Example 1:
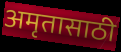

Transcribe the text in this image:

अमृतासाठी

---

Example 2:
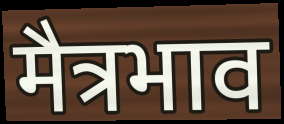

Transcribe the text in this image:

मैत्रभाव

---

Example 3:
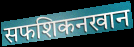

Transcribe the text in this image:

सफशिकनखान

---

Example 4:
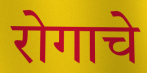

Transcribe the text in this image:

रोगाचे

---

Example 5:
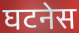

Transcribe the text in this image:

घटनेस